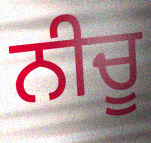
ਨੀਚੂ